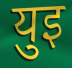
युइ